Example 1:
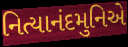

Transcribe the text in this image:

નિત્યાનંદમુનિએ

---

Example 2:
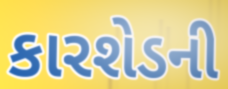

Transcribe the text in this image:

કારશેડની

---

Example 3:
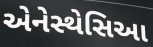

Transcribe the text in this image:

એનેસ્થેસિઆ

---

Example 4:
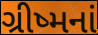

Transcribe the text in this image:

ગ્રીષ્મનાં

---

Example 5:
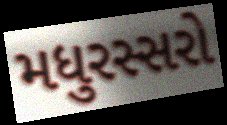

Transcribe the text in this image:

મધુરસ્સરો